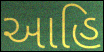
આહિ